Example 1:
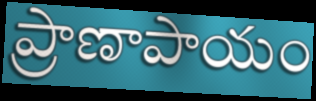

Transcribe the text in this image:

ప్రాణాపాయం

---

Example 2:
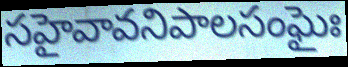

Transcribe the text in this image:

సహైవావనిపాలసంఘైః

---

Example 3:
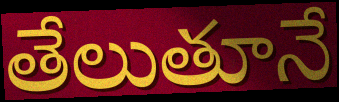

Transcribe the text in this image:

తేలుతూనే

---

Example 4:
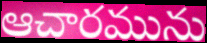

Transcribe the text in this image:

ఆచారమును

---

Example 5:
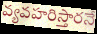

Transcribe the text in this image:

వ్యవహరిస్తారనే